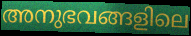
അനുഭവങ്ങളിലെ